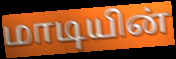
மாடியின்